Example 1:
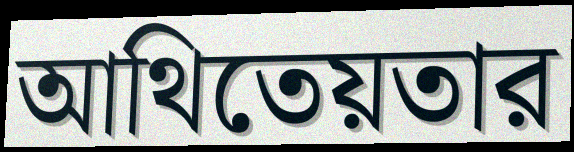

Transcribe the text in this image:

আথিতেয়তার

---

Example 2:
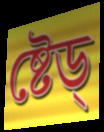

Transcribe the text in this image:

ষ্টেড্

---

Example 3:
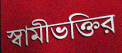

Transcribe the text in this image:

স্বামীভক্তির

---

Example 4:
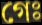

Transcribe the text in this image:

গেঃ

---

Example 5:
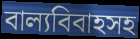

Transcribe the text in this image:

বাল্যবিবাহসহ